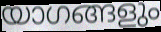
യാഗങ്ങളും